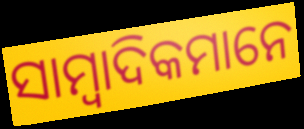
ସାମ୍ବାଦିକମାନେ